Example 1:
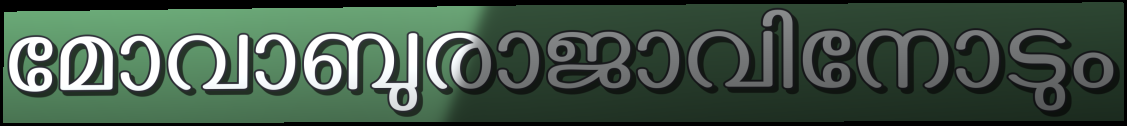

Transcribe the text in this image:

മോവാബുരാജാവിനോടും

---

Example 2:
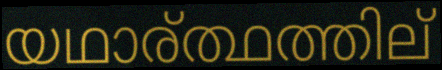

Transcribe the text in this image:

യഥാര്ത്ഥത്തില്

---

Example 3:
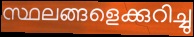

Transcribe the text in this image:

സ്ഥലങ്ങളെക്കുറിച്ചു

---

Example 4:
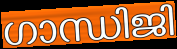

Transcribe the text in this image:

ഗാന്ധിജി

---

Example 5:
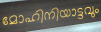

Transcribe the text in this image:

മോഹിനിയാട്ടവും